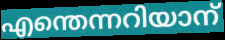
എന്തെന്നറിയാന്